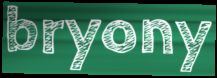
bryony